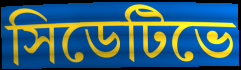
সিডেটিভে